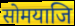
सोमयाजि